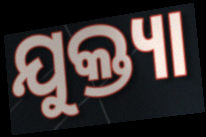
ଯୁକ୍ତ୍ୟା